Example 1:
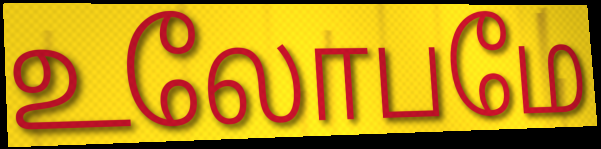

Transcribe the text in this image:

உலோபமே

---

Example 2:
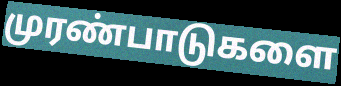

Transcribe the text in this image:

முரண்பாடுகளை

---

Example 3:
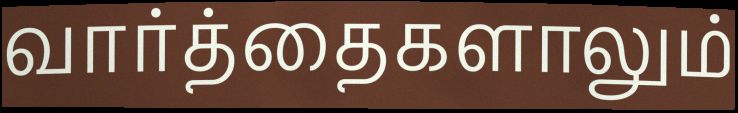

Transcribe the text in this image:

வார்த்தைகளாலும்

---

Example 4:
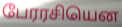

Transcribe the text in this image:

பேரரசியென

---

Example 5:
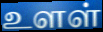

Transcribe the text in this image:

உளள்